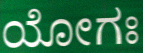
ಯೋಗಃ